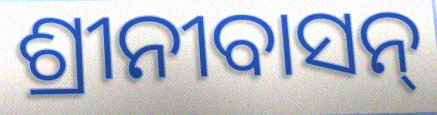
ଶ୍ରୀନୀବାସନ୍